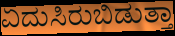
ಏದುಸಿರುಬಿಡುತ್ತಾ